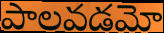
పాలవడమో